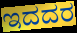
ಇದದರ